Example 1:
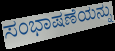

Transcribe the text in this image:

ಸಂಭಾಷಣೆಯನ್ನು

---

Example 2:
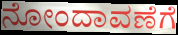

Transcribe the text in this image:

ನೋಂದಾವಣೆಗೆ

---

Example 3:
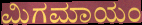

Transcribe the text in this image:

ಮಿಗಮಾಯಂ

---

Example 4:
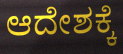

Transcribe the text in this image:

ಆದೇಶಕ್ಕೆ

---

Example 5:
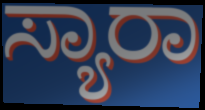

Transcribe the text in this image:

ಸ್ಯಾರಾ